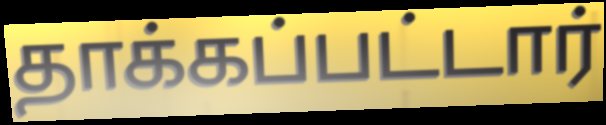
தாக்கப்பட்டார்